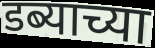
डब्याच्या